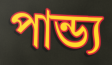
পান্ড্য